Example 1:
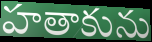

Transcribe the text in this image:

హతాకును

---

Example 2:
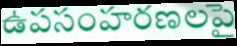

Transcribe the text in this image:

ఉపసంహరణలపై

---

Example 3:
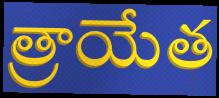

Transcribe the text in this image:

త్రాయేత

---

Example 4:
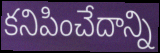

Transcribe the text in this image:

కనిపించేదాన్ని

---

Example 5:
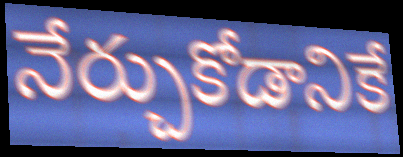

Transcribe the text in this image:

నేర్చుకోడానికే